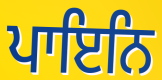
ਪਾਇਨਿ